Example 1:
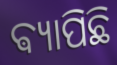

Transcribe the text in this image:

ଵ୍ୟାପିଛି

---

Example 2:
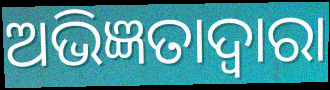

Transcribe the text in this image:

ଅଭିଜ୍ଞତାଦ୍ଵାରା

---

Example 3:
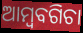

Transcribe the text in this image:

ଆମ୍ବବଗିଚା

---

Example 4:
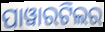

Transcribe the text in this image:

ପାୱାରଟିଲର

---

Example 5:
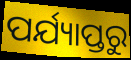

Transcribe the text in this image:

ପର୍ଯ୍ୟାପ୍ତରୁ